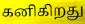
கனிகிறது